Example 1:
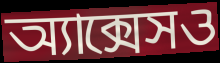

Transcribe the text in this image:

অ্যাক্সেসও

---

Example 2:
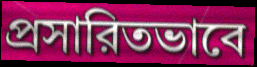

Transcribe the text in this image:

প্রসারিতভাবে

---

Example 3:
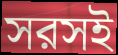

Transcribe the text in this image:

সরসই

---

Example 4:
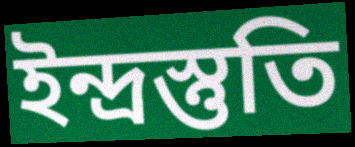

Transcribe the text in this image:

ইন্দ্রস্তুতি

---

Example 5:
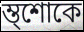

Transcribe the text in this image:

ম্ত্শোকে